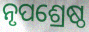
ନୃପଶ୍ରେଷ୍ଠ